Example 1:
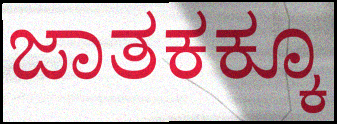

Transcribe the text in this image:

ಜಾತಕಕ್ಕೂ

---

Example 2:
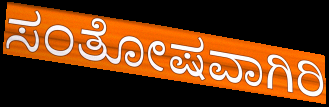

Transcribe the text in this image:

ಸಂತೋಷವಾಗಿರಿ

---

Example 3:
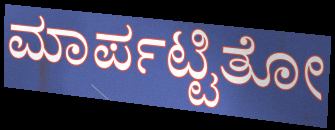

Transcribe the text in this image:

ಮಾರ್ಪಟ್ಟಿತೋ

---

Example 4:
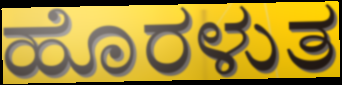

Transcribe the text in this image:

ಹೊರಳುತ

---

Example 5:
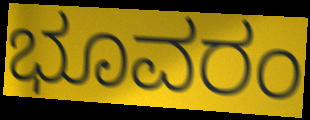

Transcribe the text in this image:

ಭೂವರಂ